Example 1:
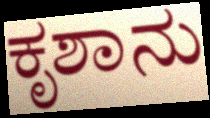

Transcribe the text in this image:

ಕೃಶಾನು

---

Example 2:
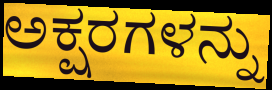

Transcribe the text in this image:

ಅಕ್ಷರಗಳನ್ನು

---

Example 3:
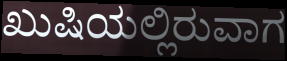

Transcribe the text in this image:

ಖುಷಿಯಲ್ಲಿರುವಾಗ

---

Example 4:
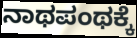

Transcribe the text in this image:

ನಾಥಪಂಥಕ್ಕೆ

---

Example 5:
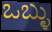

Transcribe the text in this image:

ಒಬ್ಳು